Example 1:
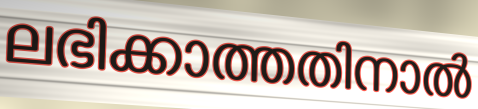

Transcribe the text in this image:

ലഭിക്കാത്തതിനാൽ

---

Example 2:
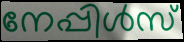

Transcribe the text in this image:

നേപ്പിൾസ്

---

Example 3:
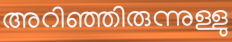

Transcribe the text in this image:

അറിഞ്ഞിരുന്നുള്ളു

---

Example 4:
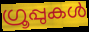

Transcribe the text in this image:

ഗ്രൂപ്പുകൾ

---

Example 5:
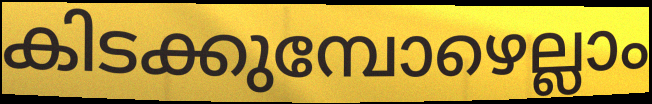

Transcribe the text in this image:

കിടക്കുമ്പോഴെല്ലാം